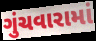
ગુંચવારામાં